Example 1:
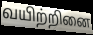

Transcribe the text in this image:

வயிற்றினை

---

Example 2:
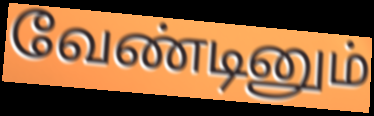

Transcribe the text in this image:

வேண்டினும்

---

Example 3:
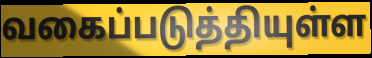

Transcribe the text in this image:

வகைப்படுத்தியுள்ள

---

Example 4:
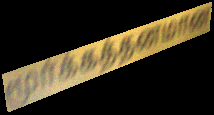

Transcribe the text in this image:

மூர்க்கத்தனமான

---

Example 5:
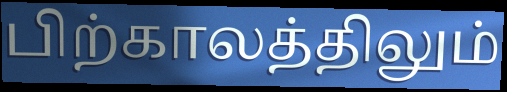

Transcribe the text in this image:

பிற்காலத்திலும்